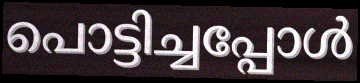
പൊട്ടിച്ചപ്പോൾ